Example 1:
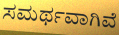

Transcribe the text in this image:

ಸಮರ್ಥವಾಗಿವೆ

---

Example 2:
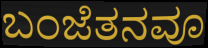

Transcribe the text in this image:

ಬಂಜೆತನವೂ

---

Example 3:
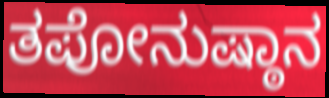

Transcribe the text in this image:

ತಪೋನುಷ್ಠಾನ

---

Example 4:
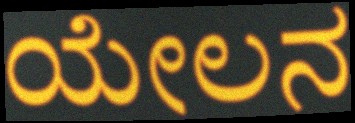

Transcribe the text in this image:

ಯೇಲನ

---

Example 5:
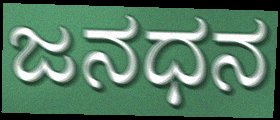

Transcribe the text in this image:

ಜನಧನ